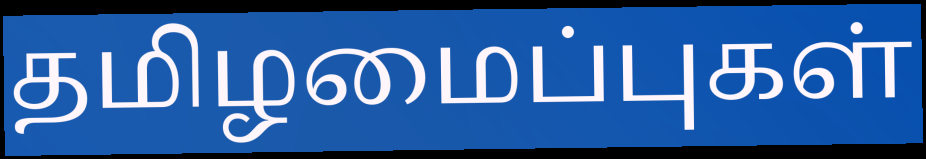
தமிழமைப்புகள்